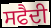
ਸਫੈਦੀ